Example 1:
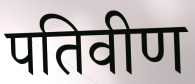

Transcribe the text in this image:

पतिवीण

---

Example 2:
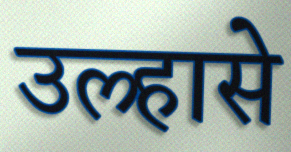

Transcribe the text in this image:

उल्हासे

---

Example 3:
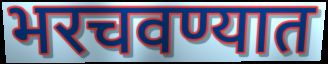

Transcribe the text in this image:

भरचवण्यात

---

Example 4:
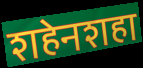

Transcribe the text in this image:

शहेनशहा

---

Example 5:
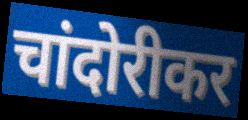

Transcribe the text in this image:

चांदोरीकर